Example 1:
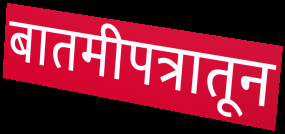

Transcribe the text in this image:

बातमीपत्रातून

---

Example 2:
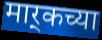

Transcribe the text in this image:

मार्कच्या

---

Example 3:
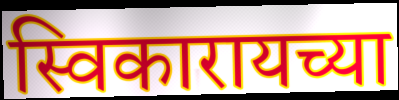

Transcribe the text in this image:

स्विकारायच्या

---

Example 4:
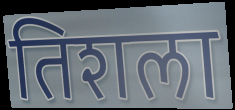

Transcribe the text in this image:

तिशला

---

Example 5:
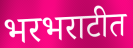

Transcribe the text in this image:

भरभराटीत